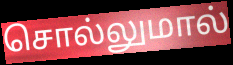
சொல்லுமால்